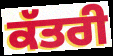
ਕੱਤਰੀ